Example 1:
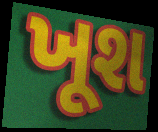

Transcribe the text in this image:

ખૂશ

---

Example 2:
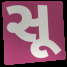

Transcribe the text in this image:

સૂ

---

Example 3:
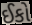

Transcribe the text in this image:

ઈકો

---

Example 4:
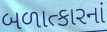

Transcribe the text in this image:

બળાત્કારનાં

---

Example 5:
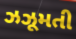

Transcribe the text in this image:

ઝઝૂમતી